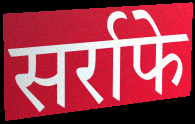
सर्राफे